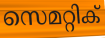
സെമറ്റിക്